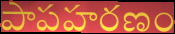
పాపహరణం